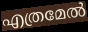
എത്രമേൽ